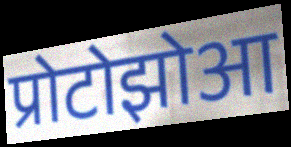
प्रोटोझोआ